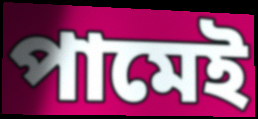
পামেই